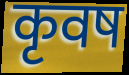
कृवष